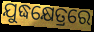
ଯୁଦ୍ଧକ୍ଷେତ୍ରରେ